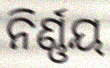
ନିର୍ଣ୍ଣୟ